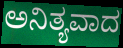
ಅನಿತ್ಯವಾದ